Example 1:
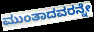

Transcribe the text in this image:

ಮುಂತಾದವರನ್ನೇ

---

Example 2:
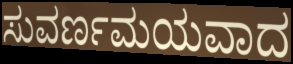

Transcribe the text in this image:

ಸುವರ್ಣಮಯವಾದ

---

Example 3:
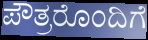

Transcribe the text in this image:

ಪೌತ್ರರೊಂದಿಗೆ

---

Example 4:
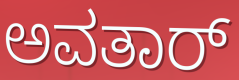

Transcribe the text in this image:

ಅವತಾರ್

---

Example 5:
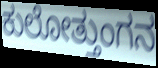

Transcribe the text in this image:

ಕುಲೋತ್ತುಂಗನ